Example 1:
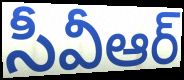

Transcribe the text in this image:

సీవీఆర్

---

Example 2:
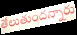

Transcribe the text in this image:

తేలుతుందన్నారు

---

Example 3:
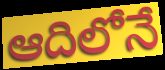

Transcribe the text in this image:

ఆదిలోనే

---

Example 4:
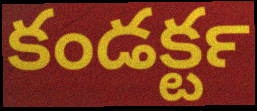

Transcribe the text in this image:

కండక్టర్‍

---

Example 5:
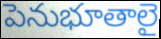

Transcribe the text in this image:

పెనుభూతాలై